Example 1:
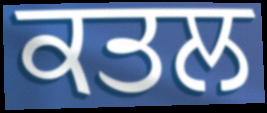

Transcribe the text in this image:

ਕਤਲ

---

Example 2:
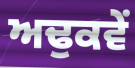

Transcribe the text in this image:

ਅਢੁਕਵੇਂ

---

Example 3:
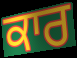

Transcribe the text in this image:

ਕਾਰ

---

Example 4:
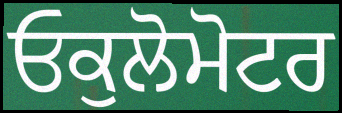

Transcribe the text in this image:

ਓਕੁਲੋਮੋਟਰ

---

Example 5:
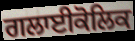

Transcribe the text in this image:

ਗਲਾਈਕੋਲਿਕ